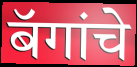
बॅगांचे